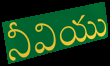
నీవియు